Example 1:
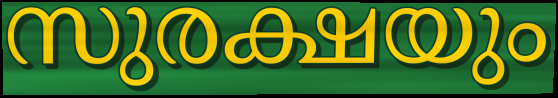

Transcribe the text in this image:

സുരക്ഷയും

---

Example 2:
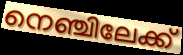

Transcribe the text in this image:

നെഞ്ചിലേക്ക്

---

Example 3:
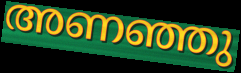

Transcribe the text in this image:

അണഞ്ഞു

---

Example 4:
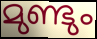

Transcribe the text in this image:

മുണ്ടും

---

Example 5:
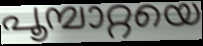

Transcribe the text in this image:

പൂമ്പാറ്റയെ